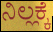
ನಿಲ್ಲಕ್ಕೆ